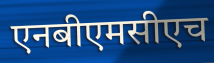
एनबीएमसीएच